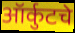
ऑर्कुटचे